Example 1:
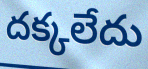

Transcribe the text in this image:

దక్కలేదు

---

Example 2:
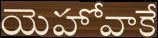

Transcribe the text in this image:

యెహోవాకే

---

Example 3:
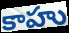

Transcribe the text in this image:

కాహు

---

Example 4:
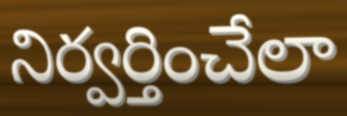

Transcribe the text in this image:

నిర్వర్తించేలా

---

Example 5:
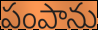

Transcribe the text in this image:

పంపాను